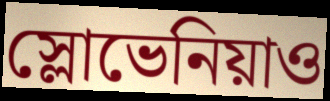
স্লোভেনিয়াও